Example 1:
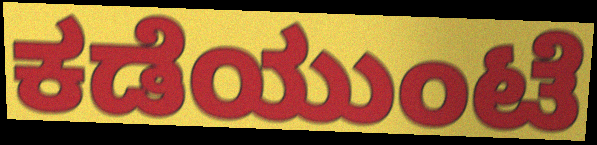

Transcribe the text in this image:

ಕಡೆಯುಂಟೆ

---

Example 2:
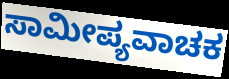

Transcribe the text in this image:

ಸಾಮೀಪ್ಯವಾಚಕ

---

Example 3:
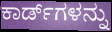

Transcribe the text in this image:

ಕಾರ್ಡ್‌ಗಳನ್ನು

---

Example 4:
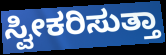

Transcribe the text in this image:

ಸ್ವೀಕರಿಸುತ್ತಾ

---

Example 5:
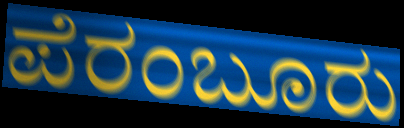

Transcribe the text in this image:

ಪೆರಂಬೂರು